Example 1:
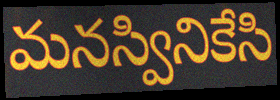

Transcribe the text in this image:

మనస్వినికేసి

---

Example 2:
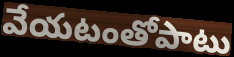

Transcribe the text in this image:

వేయటంతోపాటు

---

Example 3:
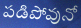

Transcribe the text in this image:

పడిపోవునో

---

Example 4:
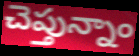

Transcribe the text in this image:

చెప్తున్నాం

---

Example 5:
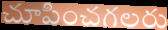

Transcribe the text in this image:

చూపించగలరు